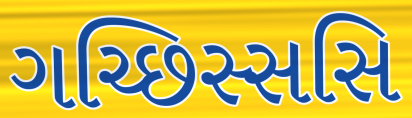
ગચ્છિસ્સસિ